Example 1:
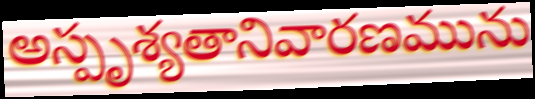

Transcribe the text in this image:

అస్పృశ్యతానివారణమును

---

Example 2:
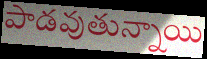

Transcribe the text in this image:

పాడవుతున్నాయి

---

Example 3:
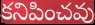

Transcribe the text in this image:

కనిపించవు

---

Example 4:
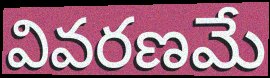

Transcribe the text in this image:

వివరణమే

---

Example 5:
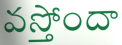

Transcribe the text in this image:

వస్తోందా